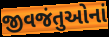
જીવજંતુઓનાં